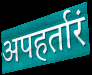
अपहर्तारं